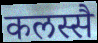
कलस्सै